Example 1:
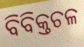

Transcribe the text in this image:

ବିବିକ୍ତଚଳ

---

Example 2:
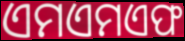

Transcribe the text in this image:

ଏମଏମଏଫ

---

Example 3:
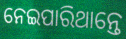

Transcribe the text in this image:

ନେଇପାରିଥାନ୍ତେ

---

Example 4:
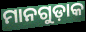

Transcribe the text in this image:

ମାନଗୁଡ଼ାକ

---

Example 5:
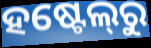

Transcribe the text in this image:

ହଷ୍ଟେଲ୍‍ରୁ